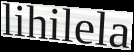
lihilela